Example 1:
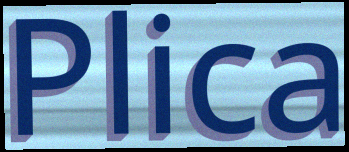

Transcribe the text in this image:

Plica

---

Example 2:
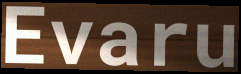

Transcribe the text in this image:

Evaru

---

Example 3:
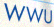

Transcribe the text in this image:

WWU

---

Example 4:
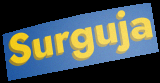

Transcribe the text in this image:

Surguja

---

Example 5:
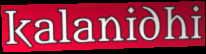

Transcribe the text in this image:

kalanidhi